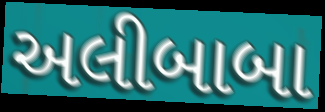
અલીબાબા